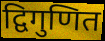
द्विगुणित